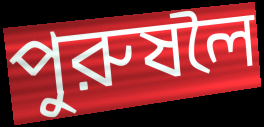
পুৰুষলৈ